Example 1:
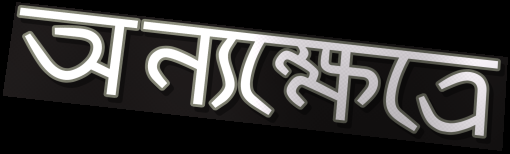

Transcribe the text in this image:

অন্যক্ষেত্রে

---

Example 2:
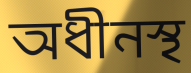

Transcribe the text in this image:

অধীনস্থ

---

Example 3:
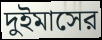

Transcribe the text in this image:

দুইমাসের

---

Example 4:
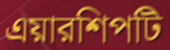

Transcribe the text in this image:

এয়ারশিপটি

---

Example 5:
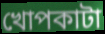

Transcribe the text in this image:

খোপকাটা